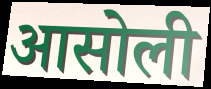
आसोली